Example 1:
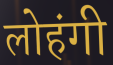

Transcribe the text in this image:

लोहंगी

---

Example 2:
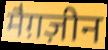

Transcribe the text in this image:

मैग़ज़ीन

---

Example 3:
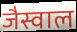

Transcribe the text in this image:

जैस्वाल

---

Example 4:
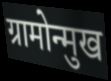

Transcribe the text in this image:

ग्रामोन्मुख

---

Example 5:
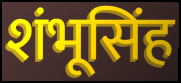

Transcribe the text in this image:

शंभूसिंह